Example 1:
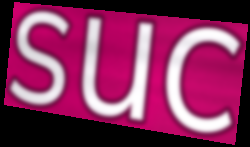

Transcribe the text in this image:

suc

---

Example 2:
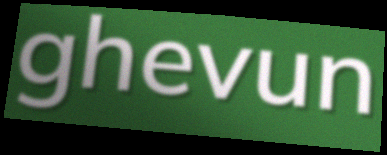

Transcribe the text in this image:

ghevun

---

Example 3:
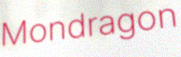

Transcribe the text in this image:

Mondragon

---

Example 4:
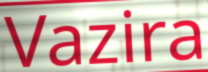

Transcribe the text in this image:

Vazira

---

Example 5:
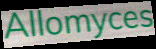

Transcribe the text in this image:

Allomyces